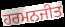
ਹਰਮਨਜੀਤ